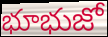
భూభుజో